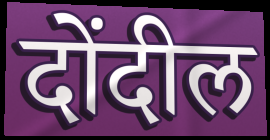
दोंदील